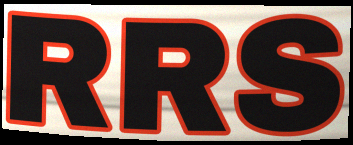
RRS